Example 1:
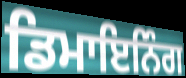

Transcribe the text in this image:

ਡਿਮਾਇਨਿੰਗ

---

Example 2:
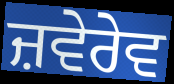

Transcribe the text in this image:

ਜ਼ਵੇਰੇਵ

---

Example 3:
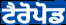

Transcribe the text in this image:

ਟੈਰੋਪੋਡ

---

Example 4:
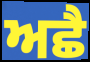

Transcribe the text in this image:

ਅਛੈ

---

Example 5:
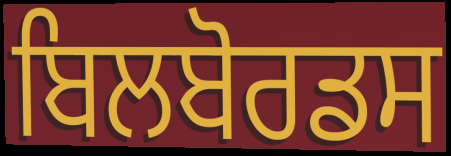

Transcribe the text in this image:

ਬਿਲਬੋਰਡਸ